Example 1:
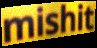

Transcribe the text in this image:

mishit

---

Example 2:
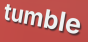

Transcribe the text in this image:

tumble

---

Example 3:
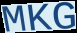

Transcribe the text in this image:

MKG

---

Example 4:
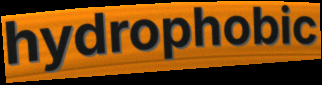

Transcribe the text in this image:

hydrophobic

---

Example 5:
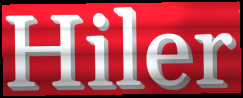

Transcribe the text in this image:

Hiler